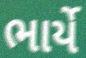
ભાર્યે